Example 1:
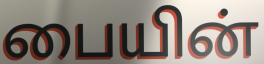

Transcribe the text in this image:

பையின்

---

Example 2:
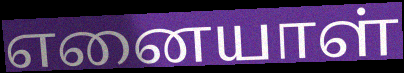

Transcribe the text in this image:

எனையாள்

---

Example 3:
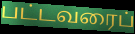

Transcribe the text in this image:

பட்டவரைப்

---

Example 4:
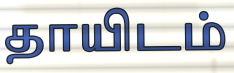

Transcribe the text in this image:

தாயிடம்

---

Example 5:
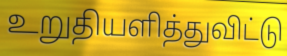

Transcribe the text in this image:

உறுதியளித்துவிட்டு